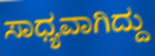
ಸಾಧ್ಯವಾಗಿದ್ದು